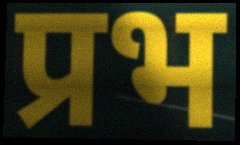
प्रभ